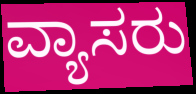
ವ್ಯಾಸರು